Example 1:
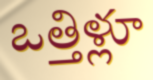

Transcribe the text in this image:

ఒత్తిళ్లూ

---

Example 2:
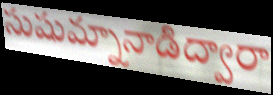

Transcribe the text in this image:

సుషుమ్నానాడిద్వారా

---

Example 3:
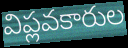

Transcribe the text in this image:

విప్లవకారుల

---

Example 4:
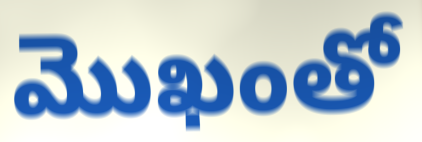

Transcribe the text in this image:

మొఖంతో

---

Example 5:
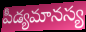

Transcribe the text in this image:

పీడ్యమానస్య